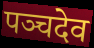
पञ्चदेव